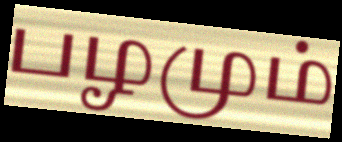
பழமும்